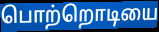
பொற்றொடியை